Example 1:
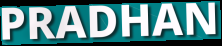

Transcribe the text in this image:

PRADHAN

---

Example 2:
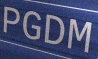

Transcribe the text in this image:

PGDM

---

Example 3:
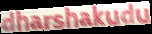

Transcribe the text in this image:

dharshakudu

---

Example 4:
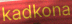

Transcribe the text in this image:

kadkona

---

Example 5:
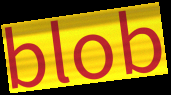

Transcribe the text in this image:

blob